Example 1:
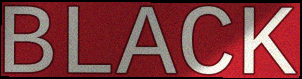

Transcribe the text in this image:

BLACK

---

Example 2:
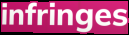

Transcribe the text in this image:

infringes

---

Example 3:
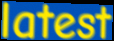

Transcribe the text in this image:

latest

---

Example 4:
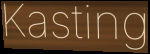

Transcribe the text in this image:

Kasting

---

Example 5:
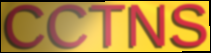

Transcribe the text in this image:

CCTNS